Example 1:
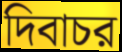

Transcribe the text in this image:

দিবাচর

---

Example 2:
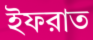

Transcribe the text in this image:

ইফরাত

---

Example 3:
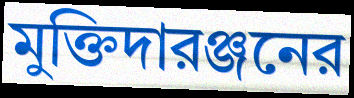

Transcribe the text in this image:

মুক্তিদারঞ্জনের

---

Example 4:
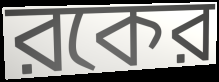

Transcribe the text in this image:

রকের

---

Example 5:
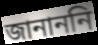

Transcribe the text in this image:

জানাননি